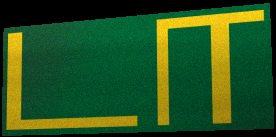
டா